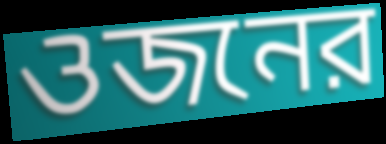
ওজনের